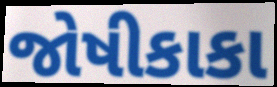
જોષીકાકા